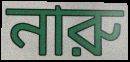
নারু